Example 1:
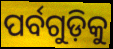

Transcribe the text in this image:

ପର୍ବଗୁଡ଼ିକୁ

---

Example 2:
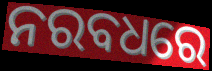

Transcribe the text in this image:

ନରବଧରେ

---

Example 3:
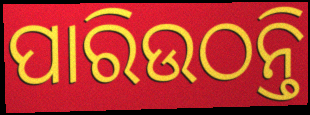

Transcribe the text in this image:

ପାରିଉଠନ୍ତି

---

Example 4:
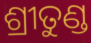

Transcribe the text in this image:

ଶ୍ରୀତୁଣ୍ଡ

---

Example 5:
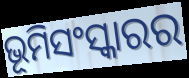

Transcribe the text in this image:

ଭୂମିସଂସ୍କାରର